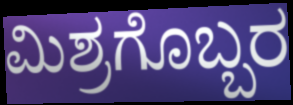
ಮಿಶ್ರಗೊಬ್ಬರ